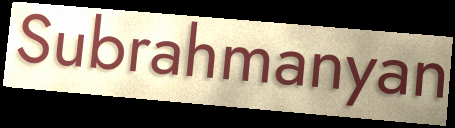
Subrahmanyan